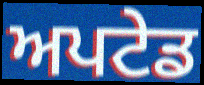
ਅਪਟੇਡ